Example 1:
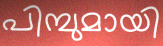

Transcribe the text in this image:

പിമ്പുമായി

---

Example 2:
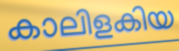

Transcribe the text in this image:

കാലിളകിയ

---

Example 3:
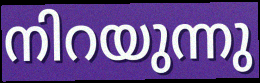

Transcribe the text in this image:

നിറയുന്നു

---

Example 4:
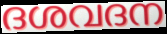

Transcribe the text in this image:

ദശവദന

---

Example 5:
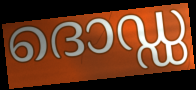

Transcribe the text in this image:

ദൊഡ്ഡ